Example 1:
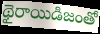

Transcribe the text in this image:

థైరాయిడిజంతో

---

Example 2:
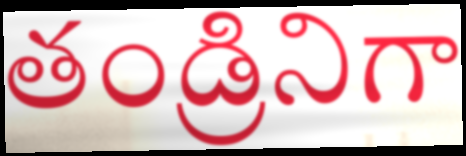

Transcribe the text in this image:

తండ్రినిగా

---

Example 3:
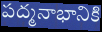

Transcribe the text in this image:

పద్మనాభానికి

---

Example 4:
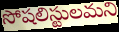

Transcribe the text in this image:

సోషలిస్టులమని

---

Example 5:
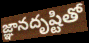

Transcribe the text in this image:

జ్ఞానదృష్టితో